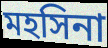
মহসিনা